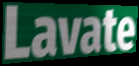
Lavate